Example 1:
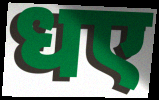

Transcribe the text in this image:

धए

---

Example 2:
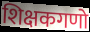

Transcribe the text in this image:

शिक्षकगणो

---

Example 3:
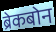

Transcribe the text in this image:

ब्रेकबोन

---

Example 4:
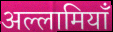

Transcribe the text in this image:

अल्लामियाँ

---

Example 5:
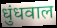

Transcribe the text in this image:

धुंधवाल